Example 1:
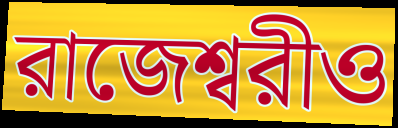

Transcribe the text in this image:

রাজেশ্বরীও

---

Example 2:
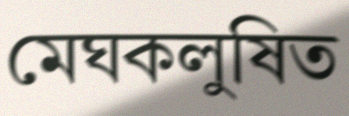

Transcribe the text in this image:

মেঘকলুষিত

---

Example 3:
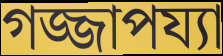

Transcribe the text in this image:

গজ্জাপয্যা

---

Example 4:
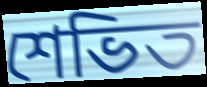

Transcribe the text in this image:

শেভিত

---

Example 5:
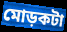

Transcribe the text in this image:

মোড়কটা